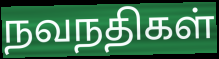
நவநதிகள்